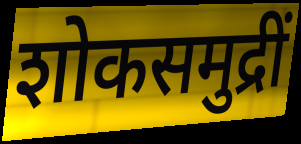
शोकसमुद्रीं